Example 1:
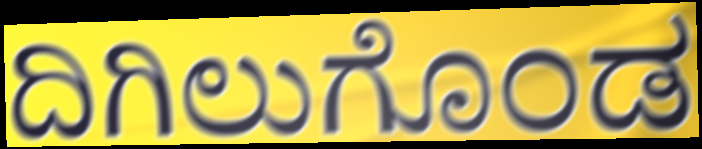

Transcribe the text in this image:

ದಿಗಿಲುಗೊಂಡ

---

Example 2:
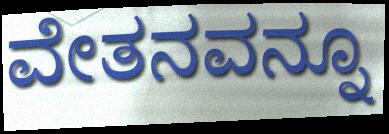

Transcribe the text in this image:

ವೇತನವನ್ನೂ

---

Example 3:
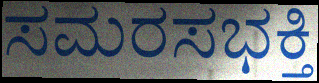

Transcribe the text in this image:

ಸಮರಸಭಕ್ತಿ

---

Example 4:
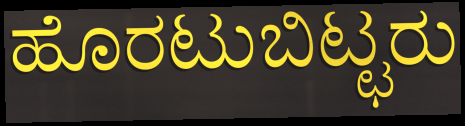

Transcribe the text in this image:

ಹೊರಟುಬಿಟ್ಟರು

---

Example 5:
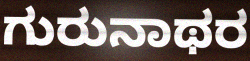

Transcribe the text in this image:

ಗುರುನಾಥರ